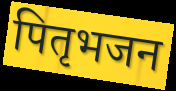
पितृभजन